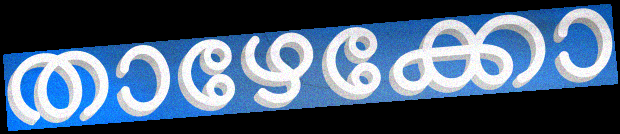
താഴേക്കോ